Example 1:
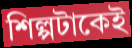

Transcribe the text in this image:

শিল্পটাকেই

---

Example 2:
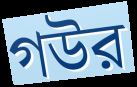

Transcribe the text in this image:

গউর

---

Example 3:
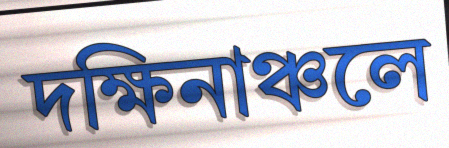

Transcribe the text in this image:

দক্ষিনাঞ্চলে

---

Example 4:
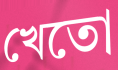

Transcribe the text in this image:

খেতো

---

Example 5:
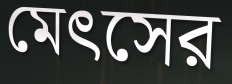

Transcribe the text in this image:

মেৎসের